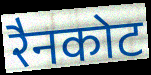
रैनकोट